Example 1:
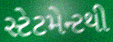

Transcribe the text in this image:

સ્ટેટમેન્ટથી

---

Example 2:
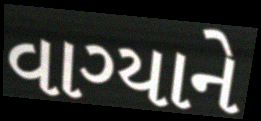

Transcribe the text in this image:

વાગ્યાને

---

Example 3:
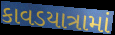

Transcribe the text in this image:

કાવડયાત્રામાં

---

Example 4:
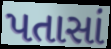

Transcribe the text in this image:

પતાસાં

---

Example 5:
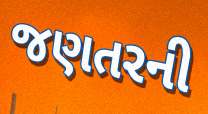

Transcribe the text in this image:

જણતરની